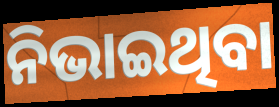
ନିଭାଇଥିବା